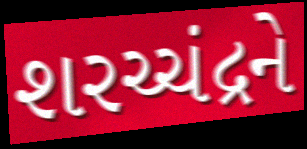
શરચ્ચંદ્રને